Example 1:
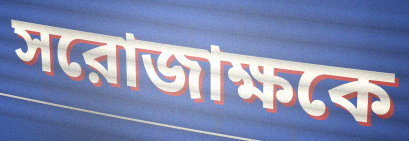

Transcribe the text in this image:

সরোজাক্ষকে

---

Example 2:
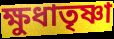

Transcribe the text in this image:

ক্ষুধাতৃষ্ণা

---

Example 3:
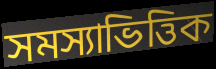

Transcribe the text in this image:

সমস্যাভিত্তিক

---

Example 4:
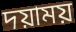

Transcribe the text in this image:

দয়াময়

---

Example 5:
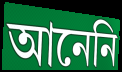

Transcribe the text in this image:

আনেনি